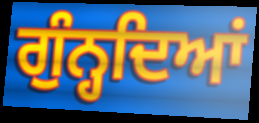
ਗੁੰਨ੍ਹਦਿਆਂ